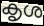
കൃശ